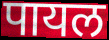
पायल